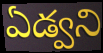
ఏడ్వని